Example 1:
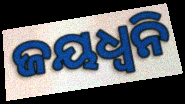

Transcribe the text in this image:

ଜୟଧ୍ଵନି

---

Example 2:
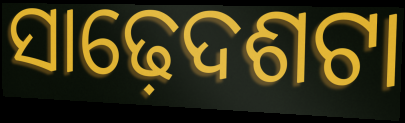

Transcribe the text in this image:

ସାଢ଼େଦଶଟା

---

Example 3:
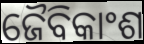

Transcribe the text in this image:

ଜୈବିକାଂଶ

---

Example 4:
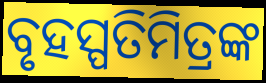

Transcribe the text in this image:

ବୃହସ୍ପତିମିତ୍ରଙ୍କ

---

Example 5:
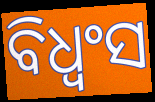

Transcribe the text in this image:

ବିଧ୍ଵଂସ